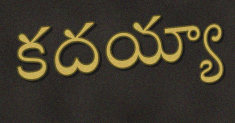
కదయ్యా